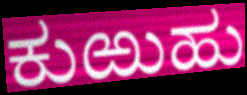
ಕುಱುಹು